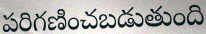
పరిగణించబడుతుంది